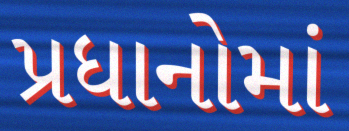
પ્રધાનોમાં